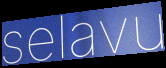
selavu